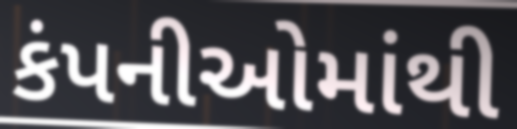
કંપનીઓમાંથી